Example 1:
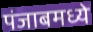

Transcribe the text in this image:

पंजाबमध्ये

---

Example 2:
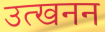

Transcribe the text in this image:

उत्खनन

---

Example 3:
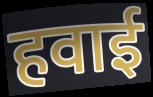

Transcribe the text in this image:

हवाई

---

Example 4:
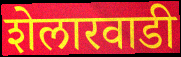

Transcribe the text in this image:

शेलारवाडी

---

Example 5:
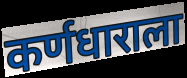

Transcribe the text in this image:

कर्णधाराला